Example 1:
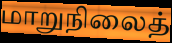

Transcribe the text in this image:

மாறுநிலைத்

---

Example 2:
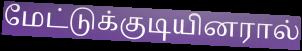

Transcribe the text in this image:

மேட்டுக்குடியினரால்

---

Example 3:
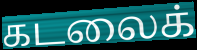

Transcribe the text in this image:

கடலைக்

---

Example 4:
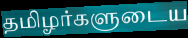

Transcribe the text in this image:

தமிழர்களுடைய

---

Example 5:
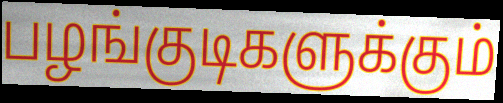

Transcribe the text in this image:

பழங்குடிகளுக்கும்